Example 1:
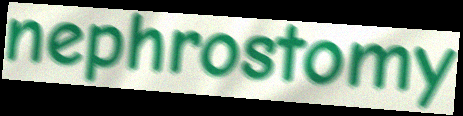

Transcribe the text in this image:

nephrostomy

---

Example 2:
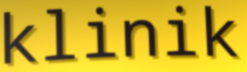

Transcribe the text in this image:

klinik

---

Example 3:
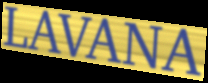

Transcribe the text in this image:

LAVANA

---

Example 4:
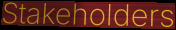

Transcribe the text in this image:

Stakeholders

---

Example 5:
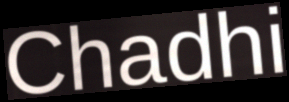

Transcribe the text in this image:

Chadhi